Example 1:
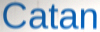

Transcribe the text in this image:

Catan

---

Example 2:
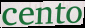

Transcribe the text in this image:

cento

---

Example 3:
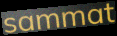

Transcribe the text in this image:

sammat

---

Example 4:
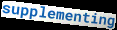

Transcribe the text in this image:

supplementing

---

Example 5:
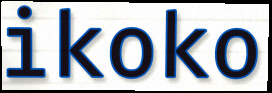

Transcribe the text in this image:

ikoko